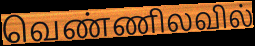
வெண்ணிலவில்